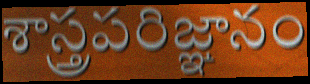
శాస్త్రపరిజ్ఞానం